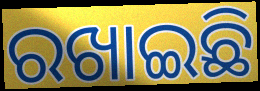
ରଖାଇଛି